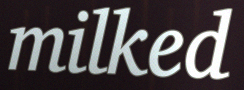
milked